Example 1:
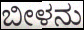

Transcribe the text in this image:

ಬೀಳನು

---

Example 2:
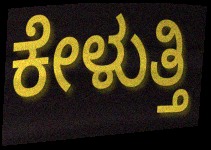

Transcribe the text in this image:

ಕೇಳುತ್ತಿ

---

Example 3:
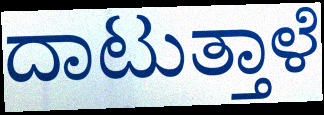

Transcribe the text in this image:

ದಾಟುತ್ತಾಳೆ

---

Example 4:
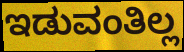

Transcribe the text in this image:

ಇಡುವಂತಿಲ್ಲ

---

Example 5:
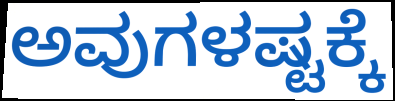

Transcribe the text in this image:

ಅವುಗಳಷ್ಟಕ್ಕೆ